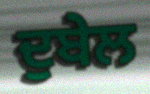
ਦੁਬੇਲ